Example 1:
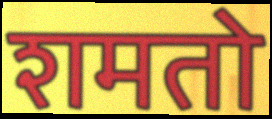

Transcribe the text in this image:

शमतो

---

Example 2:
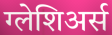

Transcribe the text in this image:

ग्लेशिअर्स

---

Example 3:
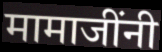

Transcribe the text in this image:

मामाजींनी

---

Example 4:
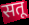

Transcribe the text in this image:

सतू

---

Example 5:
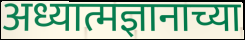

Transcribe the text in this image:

अध्यात्मज्ञानाच्या